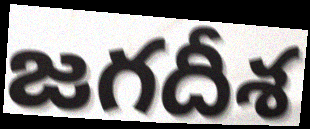
జగదీశ